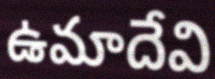
ఉమాదేవి